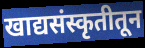
खाद्यसंस्कृतीतून